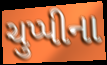
ચુપ્પીના